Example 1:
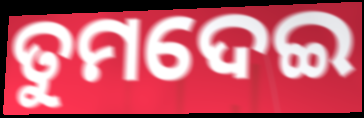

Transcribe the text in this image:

ତୁମଦେଇ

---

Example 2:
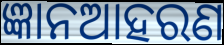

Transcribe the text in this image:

ଜ୍ଞାନଆହରଣ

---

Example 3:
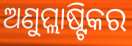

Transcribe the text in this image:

ଅଣୁପ୍ଲାଷ୍ଟିକର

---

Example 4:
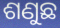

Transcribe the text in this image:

ଶଣୁଛ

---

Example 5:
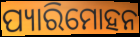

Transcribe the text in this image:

ପ୍ୟାରିମୋହନ